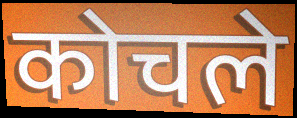
कोचले